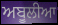
ਅਬੂਲੀਆ